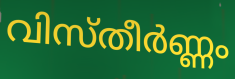
വിസ്തീർണ്ണം